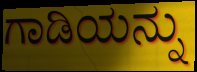
ಗಾಡಿಯನ್ನು